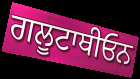
ਗਲੂਟਾਥੀਓਨ